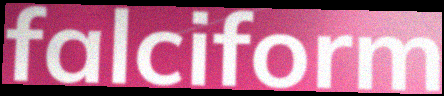
falciform